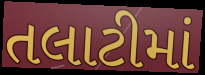
તલાટીમાં